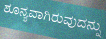
ಶೂನ್ಯವಾಗಿರುವುದನ್ನು